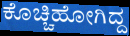
ಕೊಚ್ಚಿಹೋಗಿದ್ದ